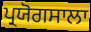
ਪ੍ਰਯੋਗਸਾਲਾ